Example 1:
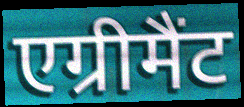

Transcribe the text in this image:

एग्रीमैंट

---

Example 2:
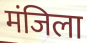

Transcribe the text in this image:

मंजिला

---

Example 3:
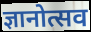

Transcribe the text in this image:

ज्ञानोत्सव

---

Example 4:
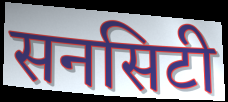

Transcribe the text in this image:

सनसिटी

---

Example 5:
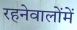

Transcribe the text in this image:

रहनेवालोंमें